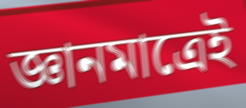
জ্ঞানমাত্রেই